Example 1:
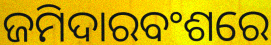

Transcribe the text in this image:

ଜମିଦାରବଂଶରେ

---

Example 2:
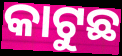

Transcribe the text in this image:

କାଟୁଛ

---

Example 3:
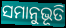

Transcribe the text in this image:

ସମାନୁଭୂତି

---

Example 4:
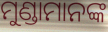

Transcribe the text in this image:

ମୁଣ୍ଡାମାନଙ୍କ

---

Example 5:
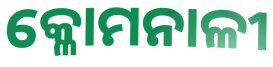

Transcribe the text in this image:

କ୍ଳୋମନାଳୀ